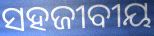
ସହଜୀବୀୟ